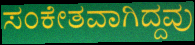
ಸಂಕೇತವಾಗಿದ್ದವು